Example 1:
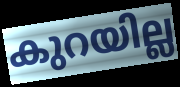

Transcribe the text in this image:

കുറയില്ല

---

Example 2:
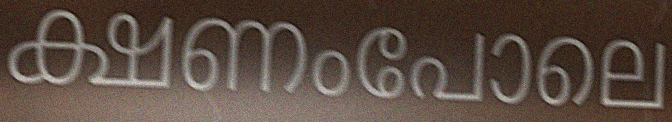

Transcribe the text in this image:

ക്ഷണംപോലെ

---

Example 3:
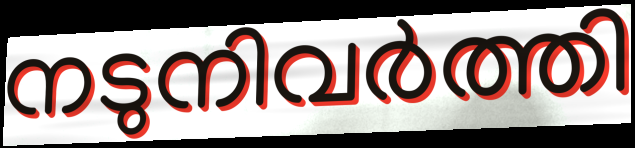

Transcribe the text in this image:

നടുനിവർത്തി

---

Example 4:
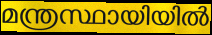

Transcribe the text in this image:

മന്ത്രസ്ഥായിയിൽ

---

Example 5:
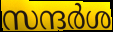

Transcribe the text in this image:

സന്ദർശ